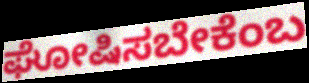
ಘೋಷಿಸಬೇಕೆಂಬ